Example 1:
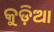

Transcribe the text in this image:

କୁଡ଼ିଆ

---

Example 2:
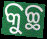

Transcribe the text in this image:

କୁଚ୍ଛ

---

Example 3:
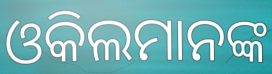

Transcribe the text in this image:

ଓକିଲମାନଙ୍କ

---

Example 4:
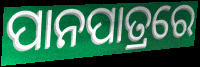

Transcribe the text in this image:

ପାନପାତ୍ରରେ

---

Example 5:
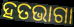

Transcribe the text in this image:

ହତଭାଗା